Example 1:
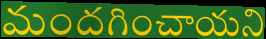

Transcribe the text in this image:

మందగించాయని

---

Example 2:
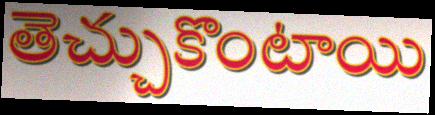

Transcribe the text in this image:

తెచ్చుకొంటాయి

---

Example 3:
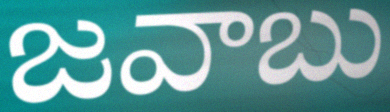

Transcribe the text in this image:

జవాబు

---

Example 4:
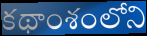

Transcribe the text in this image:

కథాంశంలోని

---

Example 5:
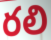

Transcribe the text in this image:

రలి